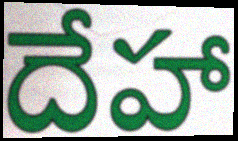
దేహా